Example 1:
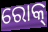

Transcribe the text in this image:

ରୋକ୍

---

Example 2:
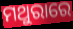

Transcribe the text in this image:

ମଥୁରାରେ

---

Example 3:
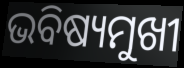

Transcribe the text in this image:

ଭବିଷ୍ୟମୁଖୀ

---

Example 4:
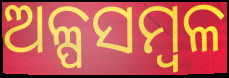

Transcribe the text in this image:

ଅଳ୍ପସମ୍ବଳ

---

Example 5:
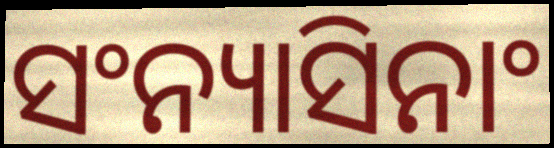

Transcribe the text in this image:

ସଂନ୍ୟାସିନାଂ